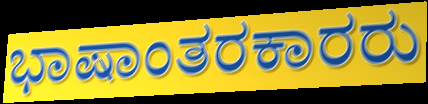
ಭಾಷಾಂತರಕಾರರು